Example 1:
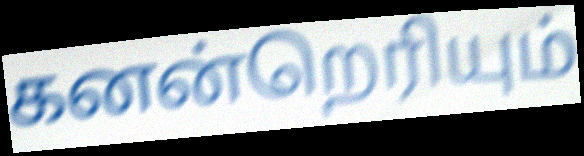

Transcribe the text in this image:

கனன்றெரியும்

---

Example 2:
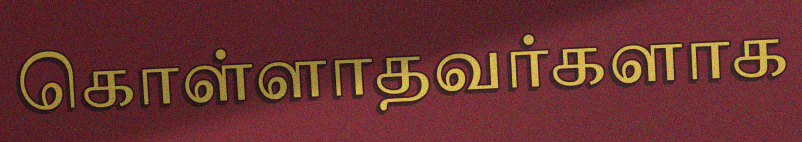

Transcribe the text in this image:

கொள்ளாதவர்களாக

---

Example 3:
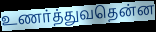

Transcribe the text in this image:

உணர்த்துவதென்ன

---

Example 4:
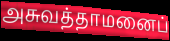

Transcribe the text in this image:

அசுவத்தாமனைப்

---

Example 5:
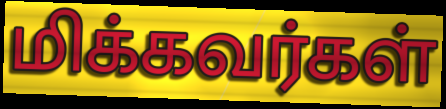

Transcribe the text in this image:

மிக்கவர்கள்